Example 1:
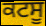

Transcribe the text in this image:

ਕਟਸੂ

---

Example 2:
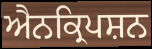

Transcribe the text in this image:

ਐਨਕ੍ਰਿਪਸ਼ਨ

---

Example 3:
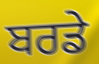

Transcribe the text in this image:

ਬਰਡੇ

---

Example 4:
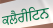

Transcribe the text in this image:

ਕਲੈਰੀਟਿਨ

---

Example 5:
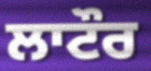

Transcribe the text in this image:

ਲਾਟੌਰ